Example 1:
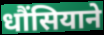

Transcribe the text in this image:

धौंसियाने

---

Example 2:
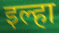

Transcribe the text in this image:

इल्हा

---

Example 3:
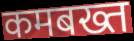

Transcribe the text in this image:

कमबख्त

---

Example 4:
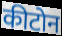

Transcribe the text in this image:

कीटोन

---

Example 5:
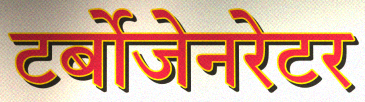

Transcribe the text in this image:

टर्बोजेनरेटर